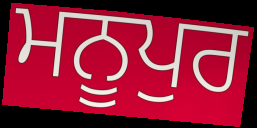
ਮਨੂਪੁਰ